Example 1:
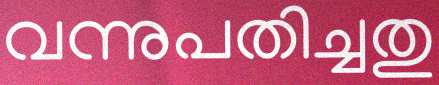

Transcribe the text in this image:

വന്നുപതിച്ചതു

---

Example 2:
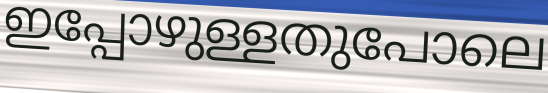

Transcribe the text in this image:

ഇപ്പോഴുള്ളതുപോലെ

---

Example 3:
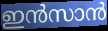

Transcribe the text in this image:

ഇൻസാൻ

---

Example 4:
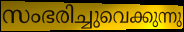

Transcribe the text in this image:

സംഭരിച്ചുവെക്കുന്നു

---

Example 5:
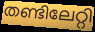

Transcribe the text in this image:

തണ്ടിലേറ്റി